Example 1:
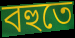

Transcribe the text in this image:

বহুতে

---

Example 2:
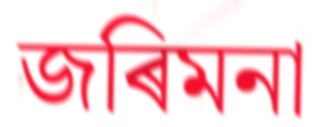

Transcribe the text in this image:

জৰিমনা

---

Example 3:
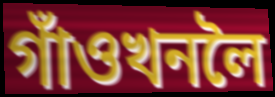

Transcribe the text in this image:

গাঁওখনলৈ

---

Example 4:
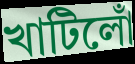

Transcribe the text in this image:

খাটিলোঁ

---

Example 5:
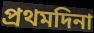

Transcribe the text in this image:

প্ৰথমদিনা